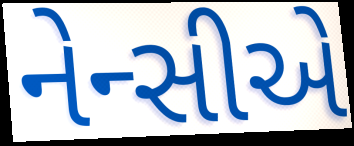
નેન્સીએ